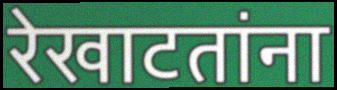
रेखाटतांना